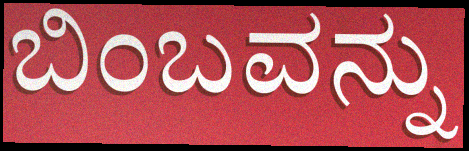
ಬಿಂಬವನ್ನು